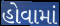
હોવામાં